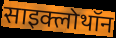
साइक्लोथॉन